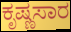
ಕೃಷ್ಣಸಾರ